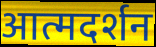
आत्मदर्शन